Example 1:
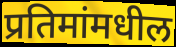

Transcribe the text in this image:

प्रतिमांमधील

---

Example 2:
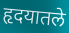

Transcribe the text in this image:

हृदयातले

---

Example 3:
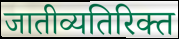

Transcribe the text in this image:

जातीव्यतिरिक्त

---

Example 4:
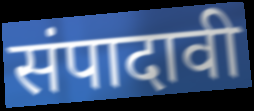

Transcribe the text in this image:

संपादावी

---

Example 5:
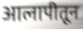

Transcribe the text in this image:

आलापीतून